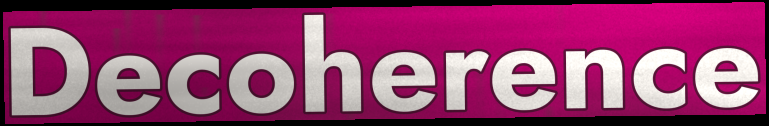
Decoherence